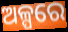
ଅଳ୍ପରେ